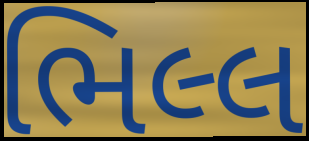
ભિલ્લ